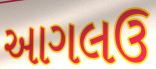
આગલઉ